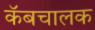
कॅबचालक